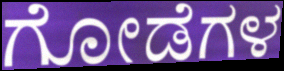
ಗೋಡೆಗಳ